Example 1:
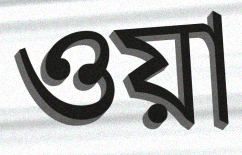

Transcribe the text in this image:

ওয়া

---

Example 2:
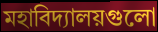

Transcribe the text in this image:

মহাবিদ্যালয়গুলো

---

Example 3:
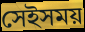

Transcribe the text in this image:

সেইসময়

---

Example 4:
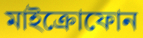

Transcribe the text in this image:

মাইক্রোফোন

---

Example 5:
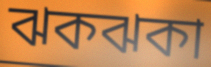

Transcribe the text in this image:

ঝকঝকা